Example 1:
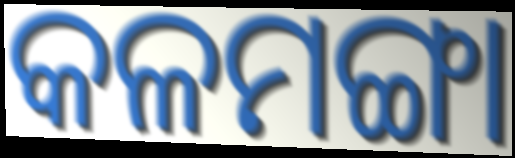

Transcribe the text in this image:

କଳମଙ୍ଗା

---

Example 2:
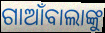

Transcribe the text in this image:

ଗାଆଁବାଲାଙ୍କୁ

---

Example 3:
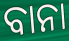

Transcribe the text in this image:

ବାନା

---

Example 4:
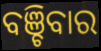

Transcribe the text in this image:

ବଞ୍ଚିବାର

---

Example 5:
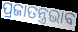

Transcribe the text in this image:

ପ୍ରଜାତନ୍ତ୍ରଭାବ